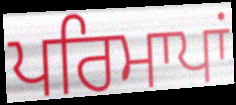
ਪਰਿਮਾਪਾਂ